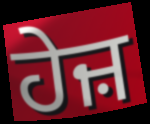
ਹੇਜ਼